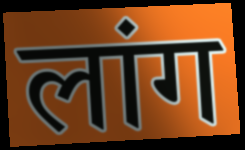
लांग